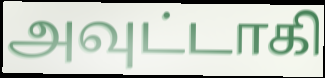
அவுட்டாகி